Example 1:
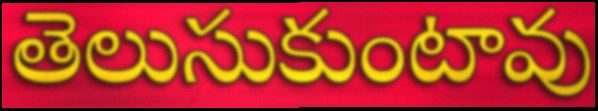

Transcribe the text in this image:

తెలుసుకుంటావు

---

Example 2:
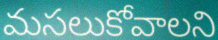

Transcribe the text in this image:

మసలుకోవాలని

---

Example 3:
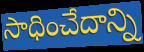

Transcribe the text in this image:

సాధించేదాన్ని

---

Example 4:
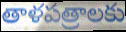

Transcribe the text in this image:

తాళపత్రాలకు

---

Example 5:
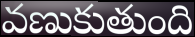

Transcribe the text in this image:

వణుకుతుంది